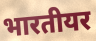
भारतीयर